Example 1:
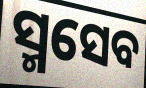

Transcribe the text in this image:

ସ୍ମସେବ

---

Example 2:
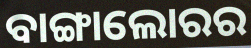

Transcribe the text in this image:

ବାଙ୍ଗାଲୋରର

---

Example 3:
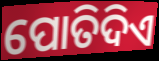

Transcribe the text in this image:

ପୋତିଦିଏ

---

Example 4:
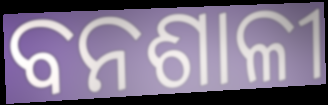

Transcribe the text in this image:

ବନଶାଳୀ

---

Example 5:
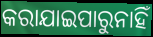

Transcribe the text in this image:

କରାଯାଇପାରୁନାହିଁ